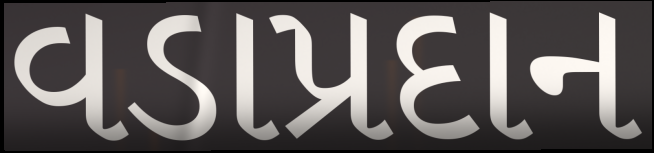
વડાપ્રદાન